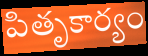
పితృకార్యం